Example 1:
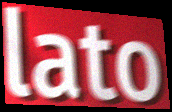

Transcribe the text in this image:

lato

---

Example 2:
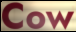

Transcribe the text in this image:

Cow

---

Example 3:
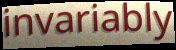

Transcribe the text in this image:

invariably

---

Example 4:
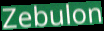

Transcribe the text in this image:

Zebulon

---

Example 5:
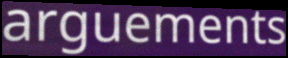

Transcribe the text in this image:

arguements